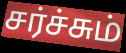
சர்ச்சும்